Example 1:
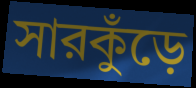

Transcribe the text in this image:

সারকুঁড়ে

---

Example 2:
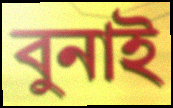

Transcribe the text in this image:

বুনাই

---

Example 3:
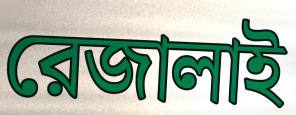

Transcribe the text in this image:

রেজালাই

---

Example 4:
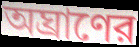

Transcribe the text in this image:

অঘ্রাণের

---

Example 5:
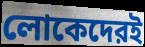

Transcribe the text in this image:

লোকেদেরই